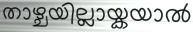
താഴ്ചയില്ലായ്കയാൽ